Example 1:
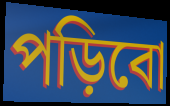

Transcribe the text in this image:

পড়িবো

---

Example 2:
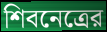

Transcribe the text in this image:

শিবনেত্রের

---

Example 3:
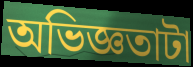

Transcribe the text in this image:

অভিজ্ঞতাটা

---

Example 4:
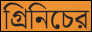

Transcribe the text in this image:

গ্রিনিচের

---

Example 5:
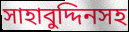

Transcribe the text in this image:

সাহাবুদ্দিনসহ